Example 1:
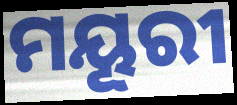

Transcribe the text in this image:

ମୟୂରୀ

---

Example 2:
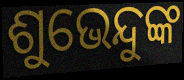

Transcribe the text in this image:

ଶୁଭେନ୍ଦୁଙ୍କ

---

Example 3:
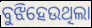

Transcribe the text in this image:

ବୁଝିହେଉଥିଲା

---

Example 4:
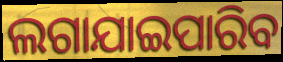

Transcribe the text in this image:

ଲଗାଯାଇପାରିବ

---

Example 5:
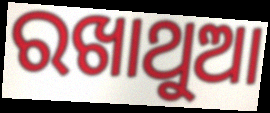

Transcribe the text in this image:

ରଖାଥୁଆ